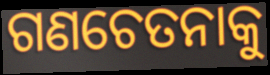
ଗଣଚେତନାକୁ